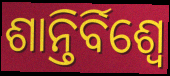
ଶାନ୍ତିର୍ବିଶ୍ୱେ